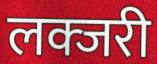
लक्‍जरी